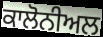
ਕਾਲੋਨੀਅਲ